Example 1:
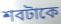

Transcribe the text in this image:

শবটাকে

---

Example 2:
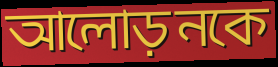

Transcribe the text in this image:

আলোড়নকে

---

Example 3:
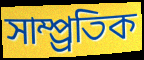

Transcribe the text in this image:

সাম্প্র্রতিক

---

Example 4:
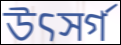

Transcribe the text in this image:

উৎসর্গ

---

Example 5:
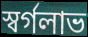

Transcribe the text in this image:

স্বর্গলাভ